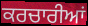
ਕਰਚਾਰੀਆਂ